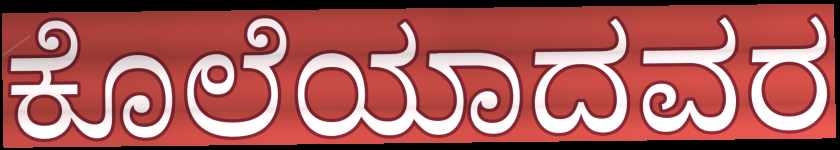
ಕೊಲೆಯಾದವರ